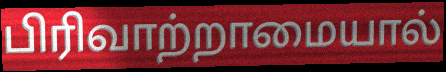
பிரிவாற்றாமையால்